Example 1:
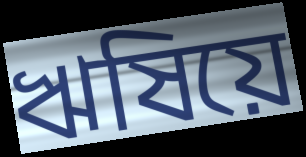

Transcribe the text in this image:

ঋষিয়ে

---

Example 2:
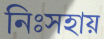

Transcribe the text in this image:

নিঃসহায়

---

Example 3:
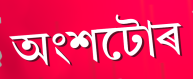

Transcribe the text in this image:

অংশটোৰ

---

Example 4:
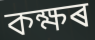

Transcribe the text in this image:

কক্ষৰ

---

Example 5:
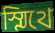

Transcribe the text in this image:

স্মিথে